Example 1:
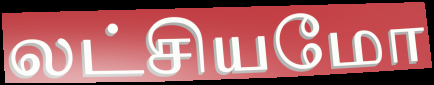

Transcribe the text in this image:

லட்சியமோ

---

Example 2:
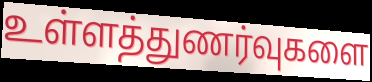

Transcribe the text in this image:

உள்ளத்துணர்வுகளை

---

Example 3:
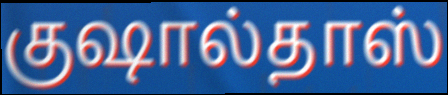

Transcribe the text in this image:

குஷால்தாஸ்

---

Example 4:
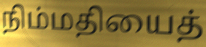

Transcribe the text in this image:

நிம்மதியைத்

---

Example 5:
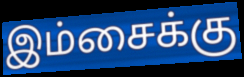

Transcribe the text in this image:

இம்சைக்கு